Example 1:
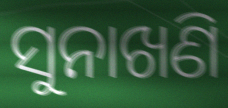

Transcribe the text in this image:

ସୁନାଖଣି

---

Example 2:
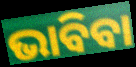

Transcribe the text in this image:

ଭାବିବା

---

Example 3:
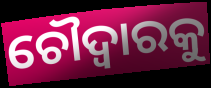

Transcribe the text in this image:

ଚୌଦ୍ୱାରକୁ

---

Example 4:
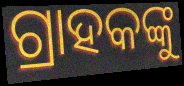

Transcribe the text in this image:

ଗ୍ରାହକଙ୍କୁ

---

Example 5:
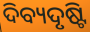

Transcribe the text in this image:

ଦିବ୍ୟଦୃଷ୍ଟି